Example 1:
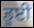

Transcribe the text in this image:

ਡੂਈ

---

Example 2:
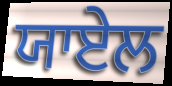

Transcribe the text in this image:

ਯਾਏਲ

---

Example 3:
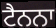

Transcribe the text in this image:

ਟੈਨਨਾ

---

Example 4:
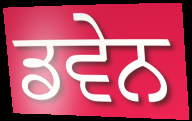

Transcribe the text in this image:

ਡਵੇਨ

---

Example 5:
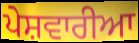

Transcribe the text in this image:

ਪੇਸ਼ਵਾਰੀਆ